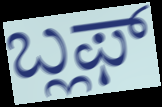
ಬ್ಲಫ್